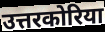
उत्तरकोरिया